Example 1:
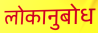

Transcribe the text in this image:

लोकानुबोध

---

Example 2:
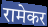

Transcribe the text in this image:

रामेकर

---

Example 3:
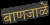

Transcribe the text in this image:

बाणजाळें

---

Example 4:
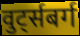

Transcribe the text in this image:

वुर्ट्सबर्ग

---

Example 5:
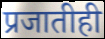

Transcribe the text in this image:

प्रजातीही